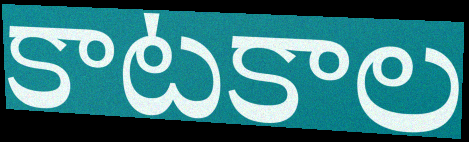
కాటకాల